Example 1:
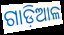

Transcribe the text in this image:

ଗାଡ଼ିଆଳ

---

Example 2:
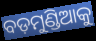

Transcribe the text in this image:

ବଡ଼ମୁଣ୍ଡିଆକୁ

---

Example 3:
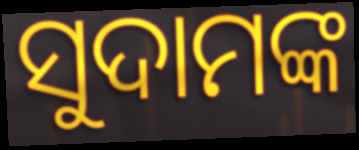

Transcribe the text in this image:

ସୁଦାମଙ୍କ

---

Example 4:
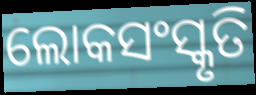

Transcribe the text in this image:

ଲୋକସଂସ୍କୃତି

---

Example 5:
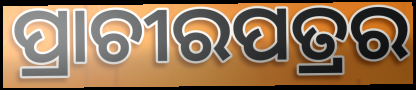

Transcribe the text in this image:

ପ୍ରାଚୀରପତ୍ରର